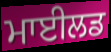
ਮਾਈਲਡ